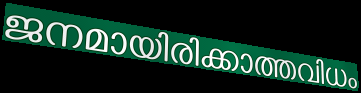
ജനമായിരിക്കാത്തവിധം